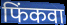
फिंकवा